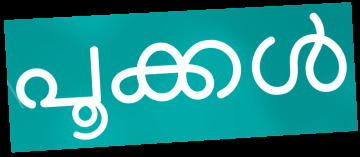
പൂക്കൾ